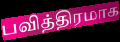
பவித்திரமாக